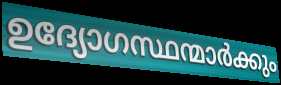
ഉദ്യോഗസ്ഥന്മാർക്കും